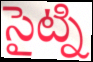
సైట్ని